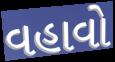
વહાવો